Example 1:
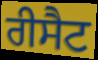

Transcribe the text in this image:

ਰੀਸੈਟ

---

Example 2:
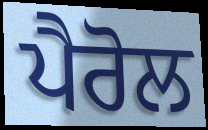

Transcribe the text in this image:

ਪੈਰੋਲ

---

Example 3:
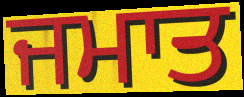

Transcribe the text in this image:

ਜਮਾਤ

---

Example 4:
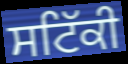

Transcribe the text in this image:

ਸਟਿੱਕੀ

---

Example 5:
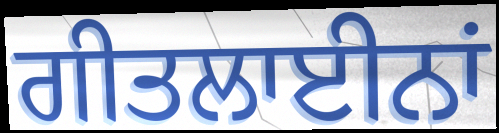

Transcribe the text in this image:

ਗੀਤਲਾਈਨਾਂ